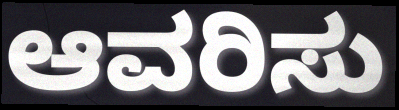
ಆವರಿಸು